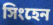
সিংহেন